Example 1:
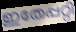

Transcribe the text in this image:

ഇതേപ്പറ്റി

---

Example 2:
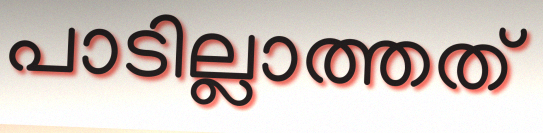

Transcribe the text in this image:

പാടില്ലാത്തത്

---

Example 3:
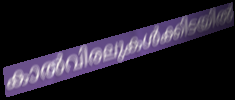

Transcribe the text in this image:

കാൽവിരലുകൾക്കിടയിൽ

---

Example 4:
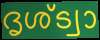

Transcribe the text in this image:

ദൃശ്ട്വാ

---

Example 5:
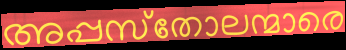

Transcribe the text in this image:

അപ്പസ്‌തോലന്മാരെ